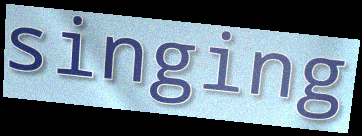
singing